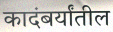
कादंबर्यांतील